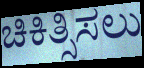
ಚಿಕಿತ್ಸಿಸಲು